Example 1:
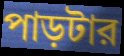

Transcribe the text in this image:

পাড়টার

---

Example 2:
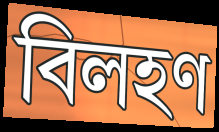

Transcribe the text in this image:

বিলহণ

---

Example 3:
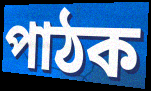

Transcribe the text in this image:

পাঠক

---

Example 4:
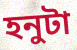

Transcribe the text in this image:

হনুটা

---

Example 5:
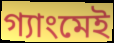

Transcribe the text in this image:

গ্যাংমেই